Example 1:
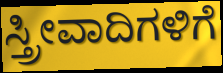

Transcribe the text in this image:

ಸ್ತ್ರೀವಾದಿಗಳಿಗೆ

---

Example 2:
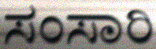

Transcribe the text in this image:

ಸಂಸಾರಿ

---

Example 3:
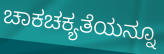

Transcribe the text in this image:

ಚಾಕಚಕ್ಯತೆಯನ್ನೂ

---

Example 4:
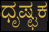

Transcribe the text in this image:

ಧೃಷ್ಟಕ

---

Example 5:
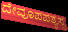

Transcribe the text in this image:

ದೇವೂಪಪತ್ಯಸ್ಸ